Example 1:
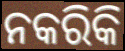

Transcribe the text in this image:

ନକରିକି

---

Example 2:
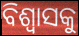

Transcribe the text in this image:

ବିଶ୍ୱାସକୁ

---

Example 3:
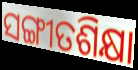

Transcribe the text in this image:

ସଙ୍ଗୀତଶିକ୍ଷା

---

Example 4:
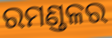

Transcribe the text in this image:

ରମଣ୍ଡଳର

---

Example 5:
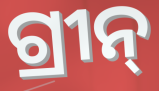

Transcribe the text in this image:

ଗ୍ରୀନ୍